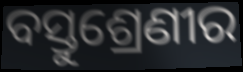
ବସ୍ତୁଶ୍ରେଣୀର